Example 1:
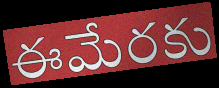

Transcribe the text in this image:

ఈమేరకు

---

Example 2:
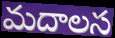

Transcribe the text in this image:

మదాలస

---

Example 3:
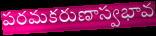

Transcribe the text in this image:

పరమకరుణాస్వభావ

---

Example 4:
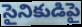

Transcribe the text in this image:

సైనికుడిపై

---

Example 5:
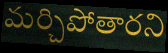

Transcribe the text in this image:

మర్చిపోతారని